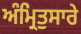
ਅੰਮ੍ਰਿਤੁਸਾਰੇ